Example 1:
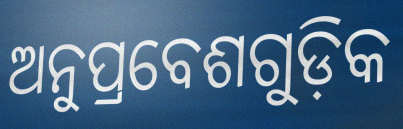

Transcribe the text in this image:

ଅନୁପ୍ରବେଶଗୁଡ଼ିକ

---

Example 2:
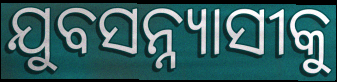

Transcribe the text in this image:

ଯୁବସନ୍ନ୍ୟାସୀକୁ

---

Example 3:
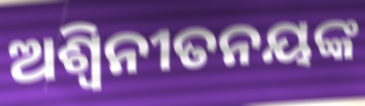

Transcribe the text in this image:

ଅଶ୍ୱିନୀତନୟଙ୍କ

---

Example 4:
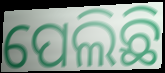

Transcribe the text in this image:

ପେଲିଛି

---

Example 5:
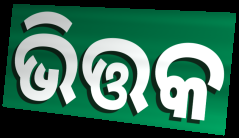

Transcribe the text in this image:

ଭିତ୍ତକ